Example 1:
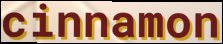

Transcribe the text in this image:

cinnamon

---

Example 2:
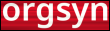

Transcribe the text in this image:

orgsyn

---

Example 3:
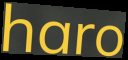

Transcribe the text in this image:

haro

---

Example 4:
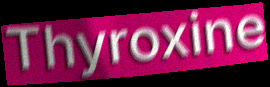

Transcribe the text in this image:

Thyroxine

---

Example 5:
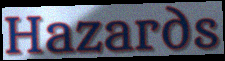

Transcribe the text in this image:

Hazards